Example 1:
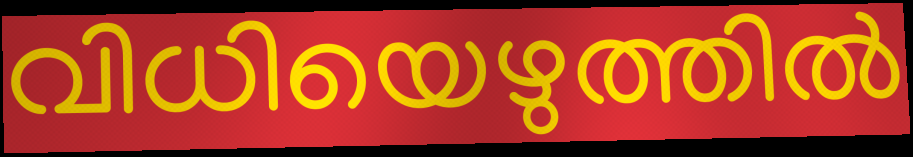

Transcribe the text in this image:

വിധിയെഴുത്തിൽ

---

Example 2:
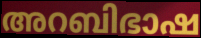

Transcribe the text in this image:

അറബിഭാഷ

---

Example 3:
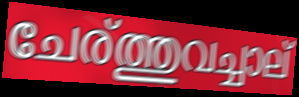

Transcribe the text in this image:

ചേര്ത്തുവച്ചാല്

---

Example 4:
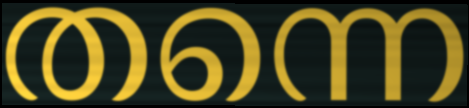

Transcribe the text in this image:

തന്നെ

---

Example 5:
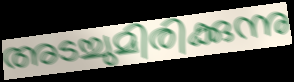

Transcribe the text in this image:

അടച്ചുമിരിക്കുന്നു